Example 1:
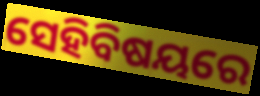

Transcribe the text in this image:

ସେହିବିଷୟରେ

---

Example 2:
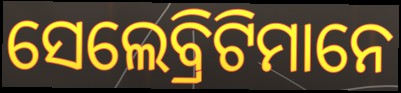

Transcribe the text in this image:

ସେଲେବ୍ରିଟିମାନେ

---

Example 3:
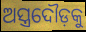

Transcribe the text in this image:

ଅସ୍ତ୍ରଦୌଡ଼କୁ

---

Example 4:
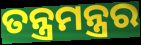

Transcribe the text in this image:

ତନ୍ତ୍ରମନ୍ତ୍ରର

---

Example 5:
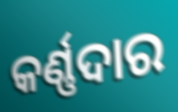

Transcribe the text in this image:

କର୍ଣ୍ଣଦାର